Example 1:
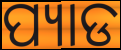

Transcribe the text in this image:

ପ୍ୟାଡ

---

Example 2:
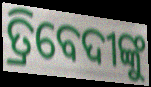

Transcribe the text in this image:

ତ୍ରିବେଦୀଙ୍କୁ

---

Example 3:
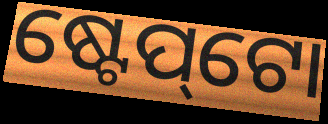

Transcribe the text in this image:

ଷ୍ଟେପ୍‌ଟୋ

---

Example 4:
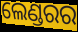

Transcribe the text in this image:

ଲେଣ୍ଡରର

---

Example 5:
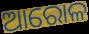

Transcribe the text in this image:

ଆରୋଳ